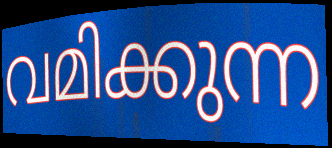
വമിക്കുന്ന